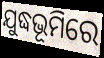
ଯୁଦ୍ଧଭୂମିରେ